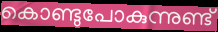
കൊണ്ടുപോകുന്നുണ്ട്